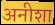
अनीशा